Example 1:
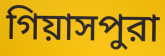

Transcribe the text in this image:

গিয়াসপুরা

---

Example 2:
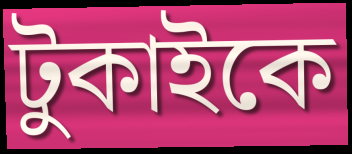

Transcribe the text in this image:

টুকাইকে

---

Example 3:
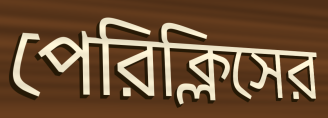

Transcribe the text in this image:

পেরিক্লিসের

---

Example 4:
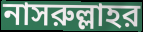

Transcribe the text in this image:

নাসরুল্লাহর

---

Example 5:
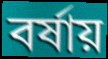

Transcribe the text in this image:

বর্ষায়